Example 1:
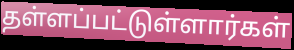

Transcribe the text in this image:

தள்ளப்பட்டுள்ளார்கள்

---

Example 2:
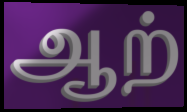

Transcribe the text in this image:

ஆற்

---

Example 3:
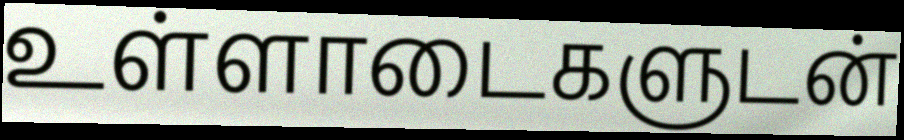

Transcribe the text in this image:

உள்ளாடைகளுடன்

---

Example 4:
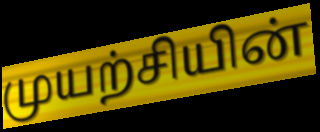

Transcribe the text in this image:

முயற்சியின்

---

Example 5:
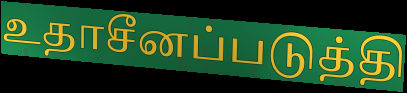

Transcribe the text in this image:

உதாசீனப்படுத்தி